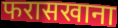
फरासखाना